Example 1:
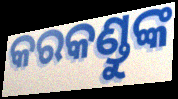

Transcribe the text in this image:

କରକଣ୍ଡୁଙ୍କ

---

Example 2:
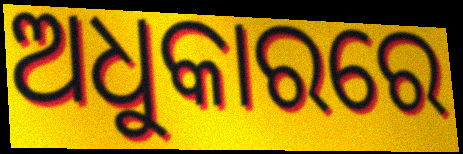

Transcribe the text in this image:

ଅଧୁକାରରେ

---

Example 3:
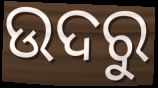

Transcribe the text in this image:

ଉଦରୁ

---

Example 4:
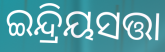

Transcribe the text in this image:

ଇନ୍ଦ୍ରିୟସତ୍ତା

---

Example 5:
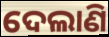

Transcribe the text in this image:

ଦେଲାଣି